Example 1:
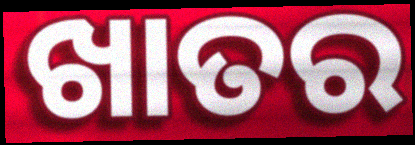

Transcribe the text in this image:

ଖାତର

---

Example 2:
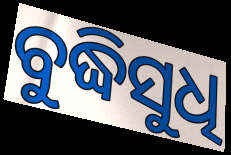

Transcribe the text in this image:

ବୁଦ୍ଧିସୁଧି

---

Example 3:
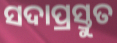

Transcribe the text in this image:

ସଦାପ୍ରସ୍ତୁତ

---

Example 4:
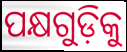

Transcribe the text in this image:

ପକ୍ଷଗୁଡ଼ିକୁ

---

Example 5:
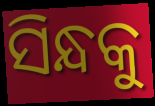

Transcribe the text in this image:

ସିନ୍ଧକୁ